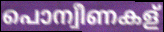
പൊന്വീണകള്